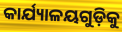
କାର୍ଯ୍ୟାଳୟଗୁଡ଼ିକୁ